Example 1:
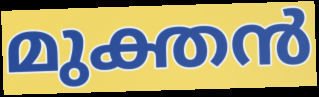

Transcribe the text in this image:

മുക്തൻ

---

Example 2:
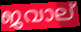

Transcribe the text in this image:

ജവാല്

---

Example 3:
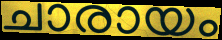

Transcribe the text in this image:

ചാരായം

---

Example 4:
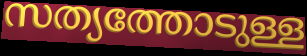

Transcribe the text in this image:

സത്യത്തോടുള്ള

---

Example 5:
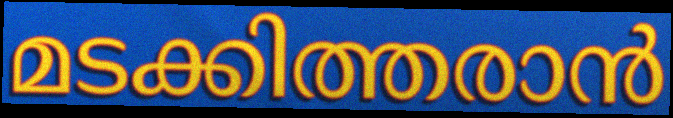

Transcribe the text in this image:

മടക്കിത്തരാൻ